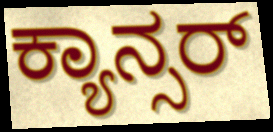
ಕ್ಯಾನ್ಸರ್